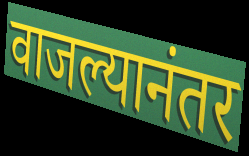
वाजल्यानंतर